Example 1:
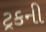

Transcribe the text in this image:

ટ્રકની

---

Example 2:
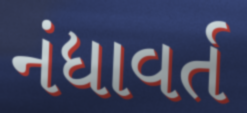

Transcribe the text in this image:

નંદ્યાવર્ત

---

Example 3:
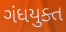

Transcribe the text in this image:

ગંધયુક્ત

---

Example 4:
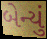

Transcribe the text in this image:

બેન્યું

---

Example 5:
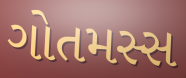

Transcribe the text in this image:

ગોતમસ્સ